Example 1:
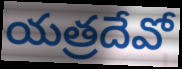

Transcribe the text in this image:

యత్రదేవో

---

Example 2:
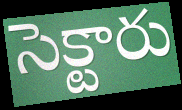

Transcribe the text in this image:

సెక్టారు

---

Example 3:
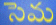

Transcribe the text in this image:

సెమ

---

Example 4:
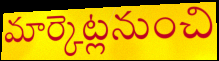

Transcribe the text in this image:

మార్కెట్లనుంచి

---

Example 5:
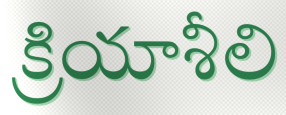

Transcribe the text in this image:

క్రియాశీలి